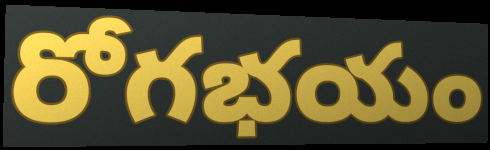
రోగభయం